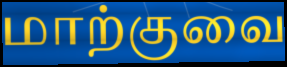
மாற்குவை